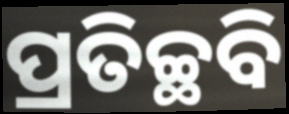
ପ୍ରତିଚ୍ଛବି